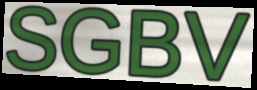
SGBV